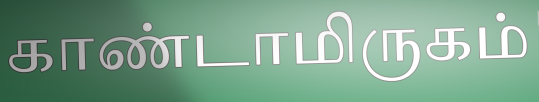
காண்டாமிருகம்